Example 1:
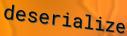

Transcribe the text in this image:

deserialize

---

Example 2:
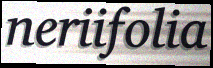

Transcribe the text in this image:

neriifolia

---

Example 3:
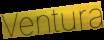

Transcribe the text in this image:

Ventura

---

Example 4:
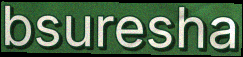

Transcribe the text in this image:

bsuresha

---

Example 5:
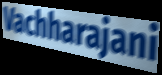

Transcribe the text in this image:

Vachharajani